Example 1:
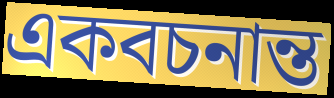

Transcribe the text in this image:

একবচনান্ত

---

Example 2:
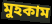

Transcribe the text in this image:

মুহকাম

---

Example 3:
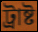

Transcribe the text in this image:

ট্ৰাষ্ট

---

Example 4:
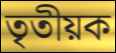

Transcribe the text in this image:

তৃতীয়ক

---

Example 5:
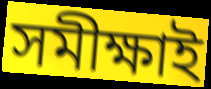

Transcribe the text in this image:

সমীক্ষাই